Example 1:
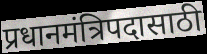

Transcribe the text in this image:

प्रधानमंत्रिपदासाठी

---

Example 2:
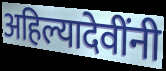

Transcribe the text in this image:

अहिल्यादेवींनी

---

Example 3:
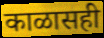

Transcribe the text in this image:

काळासही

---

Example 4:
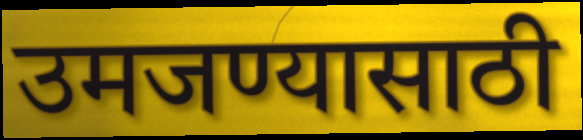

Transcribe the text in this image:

उमजण्यासाठी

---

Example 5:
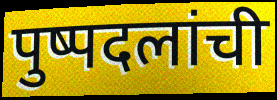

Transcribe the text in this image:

पुष्पदलांची